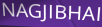
NAGJIBHAI